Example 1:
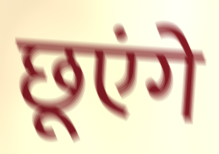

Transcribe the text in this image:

छूएंगे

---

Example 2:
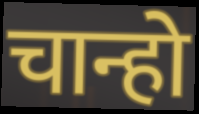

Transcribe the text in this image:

चान्हो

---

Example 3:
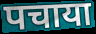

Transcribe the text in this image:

पचाया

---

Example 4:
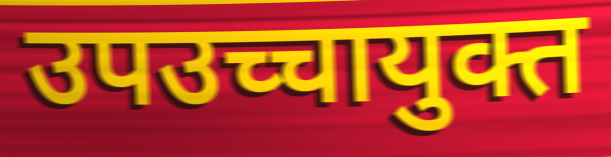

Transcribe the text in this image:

उपउच्चायुक्त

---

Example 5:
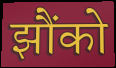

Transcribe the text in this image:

झौंको